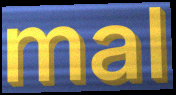
mal